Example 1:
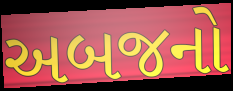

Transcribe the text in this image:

અબજનો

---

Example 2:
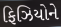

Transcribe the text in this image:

ફિઝિયોને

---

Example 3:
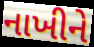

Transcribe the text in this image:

નાખીને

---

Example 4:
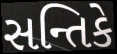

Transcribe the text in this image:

સન્તિકે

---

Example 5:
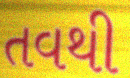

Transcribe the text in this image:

તવથી